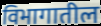
विभागातील